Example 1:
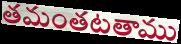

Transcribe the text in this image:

తమంతటతాము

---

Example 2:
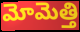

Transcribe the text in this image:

మోమెత్తి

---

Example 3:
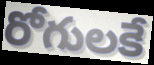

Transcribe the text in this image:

రోగులకే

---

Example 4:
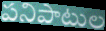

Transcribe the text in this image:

పనిపాటుల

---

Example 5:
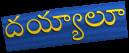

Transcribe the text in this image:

దయ్యాలూ